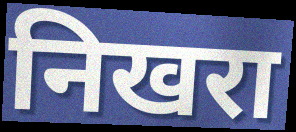
निखरा